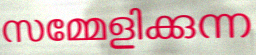
സമ്മേളിക്കുന്ന